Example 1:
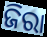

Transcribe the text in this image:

ଜିରା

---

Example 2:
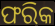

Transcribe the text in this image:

ଫରିକ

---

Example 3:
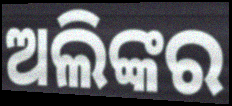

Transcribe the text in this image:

ଅଲିଙ୍କର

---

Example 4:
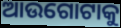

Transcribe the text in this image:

ଆଉଗୋଟାକୁ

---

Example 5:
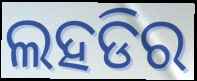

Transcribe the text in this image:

ଲହଡିର